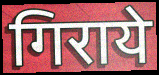
गिराये